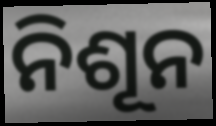
ନିଶୂନ